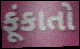
ફૂંકાતો